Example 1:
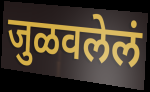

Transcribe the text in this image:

जुळवलेलं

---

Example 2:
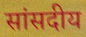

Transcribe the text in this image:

सांसदीय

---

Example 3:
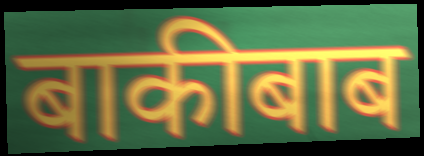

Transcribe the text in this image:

बाकीबाब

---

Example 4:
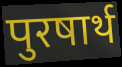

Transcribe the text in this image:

पुरषार्थ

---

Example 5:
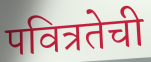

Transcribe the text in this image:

पवित्रतेची